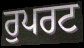
ਰੁਪਰਟ